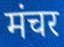
मंचर